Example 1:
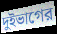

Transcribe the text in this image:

দুইভাগের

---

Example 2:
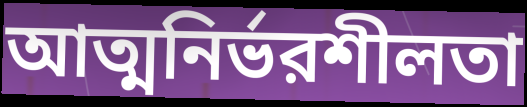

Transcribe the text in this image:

আত্মনির্ভরশীলতা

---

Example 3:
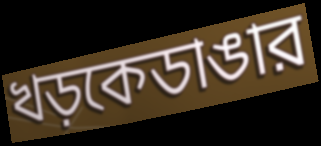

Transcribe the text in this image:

খড়কেডাঙার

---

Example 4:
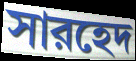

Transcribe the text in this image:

সারহেদ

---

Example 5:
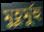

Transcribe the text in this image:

মুহূর্মুহু